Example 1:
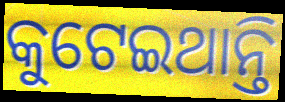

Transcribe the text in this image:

କୁଟେଇଥାନ୍ତି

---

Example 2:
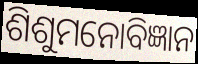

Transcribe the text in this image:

ଶିଶୁମନୋବିଜ୍ଞାନ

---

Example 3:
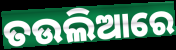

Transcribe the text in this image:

ତଉଲିଆରେ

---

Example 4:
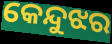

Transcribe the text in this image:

କେନ୍ଦୁଝର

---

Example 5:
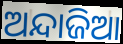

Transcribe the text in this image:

ଅନ୍ଦାଜିଆ